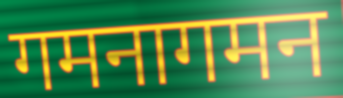
गमनागमन